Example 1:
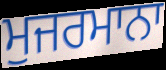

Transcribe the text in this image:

ਮੁਜਰਮਾਨਾ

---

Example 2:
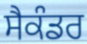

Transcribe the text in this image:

ਸੈਕੰਡਰ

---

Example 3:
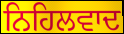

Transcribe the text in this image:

ਨਿਹਿਲਵਾਦ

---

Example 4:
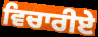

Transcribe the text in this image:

ਵਿਚਾਰੀਏ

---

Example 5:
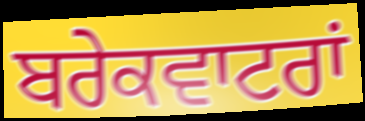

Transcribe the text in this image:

ਬਰੇਕਵਾਟਰਾਂ